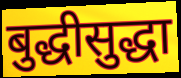
बुद्धीसुद्धा